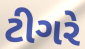
ટીગરે